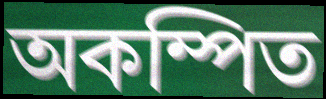
অকম্পিত